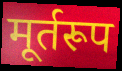
मूर्तरूप